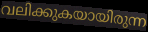
വലിക്കുകയായിരുന്ന